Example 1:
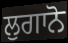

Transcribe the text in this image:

ਲੁਗਾਨੋ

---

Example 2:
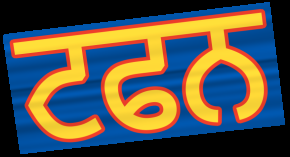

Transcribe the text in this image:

ਟਫਨ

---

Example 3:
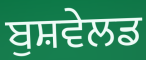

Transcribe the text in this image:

ਬੁਸ਼ਵੇਲਡ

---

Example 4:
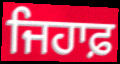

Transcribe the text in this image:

ਜਿਹਾਫ਼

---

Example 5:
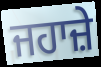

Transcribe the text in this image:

ਜਹਾਜ਼ੇ